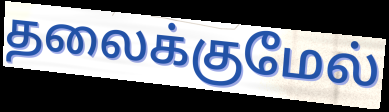
தலைக்குமேல்